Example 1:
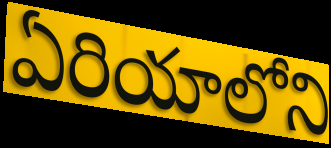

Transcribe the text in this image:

ఏరియాలోని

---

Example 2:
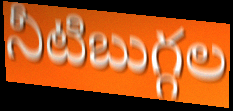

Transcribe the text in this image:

నీటిబుగ్గల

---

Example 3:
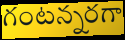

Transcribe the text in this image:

గంటన్నరగా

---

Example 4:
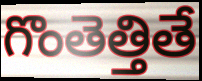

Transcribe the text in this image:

గొంతెత్తితే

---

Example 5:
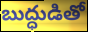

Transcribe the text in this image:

బుద్ధుడితో